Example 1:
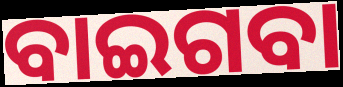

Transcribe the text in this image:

ବାଇଗବା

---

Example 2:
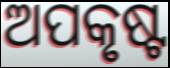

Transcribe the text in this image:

ଅପକୃଷ୍ଟ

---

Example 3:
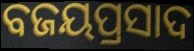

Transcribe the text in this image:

ବଜୟପ୍ରସାଦ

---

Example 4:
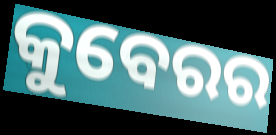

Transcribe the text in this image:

କୁବେରର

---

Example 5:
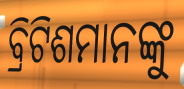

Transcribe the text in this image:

ବ୍ରିଟିଶମାନଙ୍କୁ